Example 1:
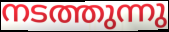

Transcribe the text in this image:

നടത്തുന്നു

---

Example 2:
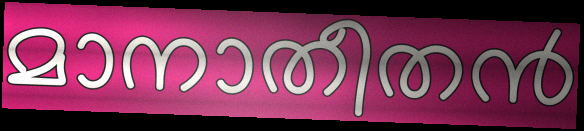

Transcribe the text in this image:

മാനാതീതൻ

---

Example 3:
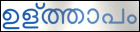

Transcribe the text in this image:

ഉള്ത്താപം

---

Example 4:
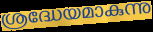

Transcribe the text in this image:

ശ്രദ്ധേയമാകുന്നു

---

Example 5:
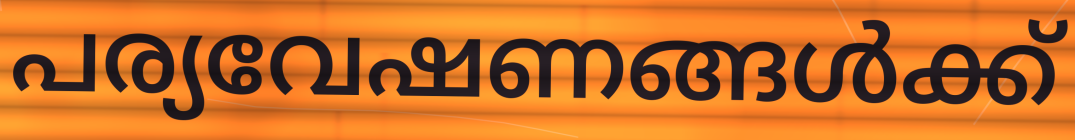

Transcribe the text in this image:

പര്യവേഷണങ്ങൾക്ക്